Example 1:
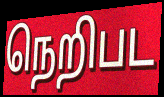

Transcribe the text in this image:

நெறிபட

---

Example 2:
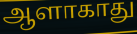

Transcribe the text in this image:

ஆளாகாது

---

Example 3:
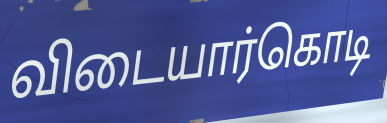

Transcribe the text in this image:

விடையார்கொடி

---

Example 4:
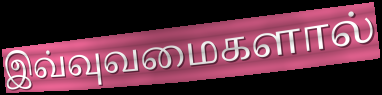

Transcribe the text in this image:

இவ்வுவமைகளால்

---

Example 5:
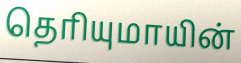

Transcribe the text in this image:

தெரியுமாயின்